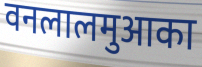
वनलालमुआका